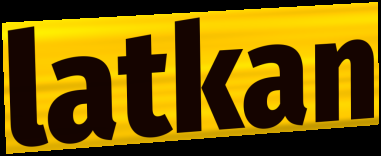
latkan